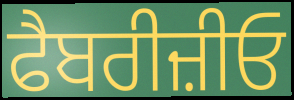
ਫੈਬਰੀਜ਼ੀਓ